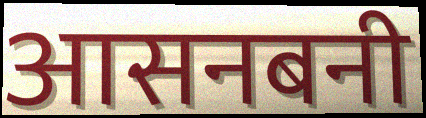
आसनबनी